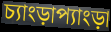
চ্যাংড়াপ্যাংড়া